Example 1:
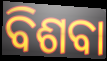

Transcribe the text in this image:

ବିଶବା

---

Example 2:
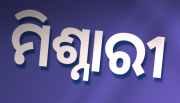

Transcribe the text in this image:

ମିଶ୍ନାରୀ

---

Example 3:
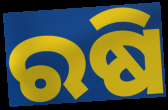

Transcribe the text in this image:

ରଷି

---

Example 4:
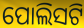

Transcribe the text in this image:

ପୋଲିସଟି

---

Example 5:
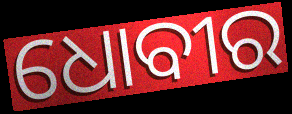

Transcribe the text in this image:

ଧୋବୀର